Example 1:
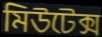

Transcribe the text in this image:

মিউটেক্স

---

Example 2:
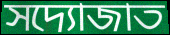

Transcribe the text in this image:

সদ্যোজাত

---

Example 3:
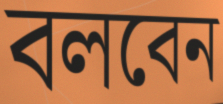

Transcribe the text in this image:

বলবেন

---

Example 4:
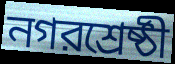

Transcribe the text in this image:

নগরশ্রেষ্ঠী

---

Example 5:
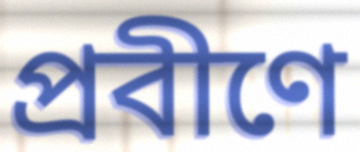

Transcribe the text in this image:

প্রবীণে